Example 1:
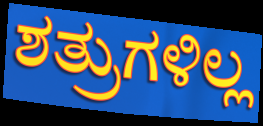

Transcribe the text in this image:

ಶತ್ರುಗಳಿಲ್ಲ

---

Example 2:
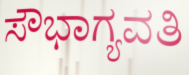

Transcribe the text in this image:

ಸೌಭಾಗ್ಯವತಿ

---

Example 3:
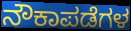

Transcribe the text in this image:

ನೌಕಾಪಡೆಗಳ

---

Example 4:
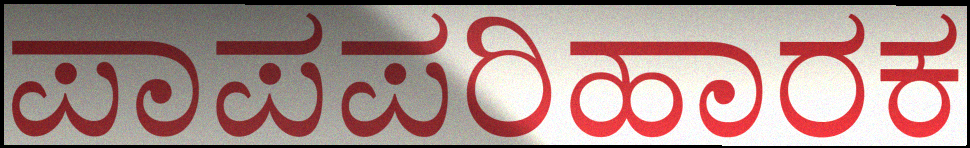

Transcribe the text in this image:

ಪಾಪಪರಿಹಾರಕ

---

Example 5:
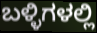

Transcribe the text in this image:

ಬಳ್ಳಿಗಳಲ್ಲಿ